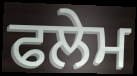
ਫਲੇਮ